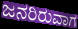
ಜನರಿರುವಾಗ